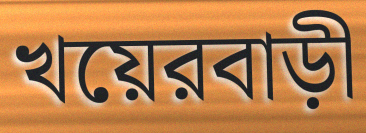
খয়েরবাড়ী